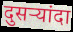
दुसऱ्यांदा